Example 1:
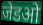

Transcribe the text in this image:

जेडओ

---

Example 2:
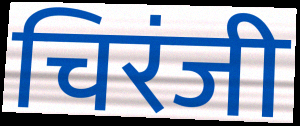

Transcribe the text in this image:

चिरंजी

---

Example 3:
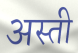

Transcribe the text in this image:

अस्ती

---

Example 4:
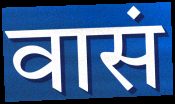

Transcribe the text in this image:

वासं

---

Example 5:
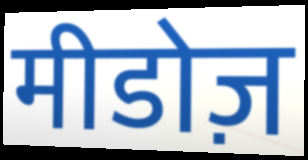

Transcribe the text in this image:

मीडोज़